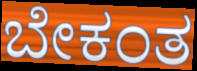
ಬೇಕಂತ